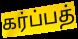
கர்ப்பத்